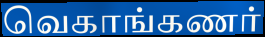
வெகாங்கணர்